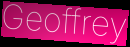
Geoffrey